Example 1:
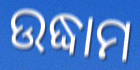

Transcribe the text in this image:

ଉଦ୍ଧାମ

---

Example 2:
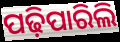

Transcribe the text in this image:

ପଢ଼ିପାରିଲି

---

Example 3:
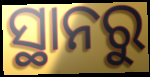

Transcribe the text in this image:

ସ୍ଥାନରୁ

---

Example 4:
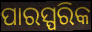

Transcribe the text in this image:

ପାରସ୍ପରିକ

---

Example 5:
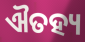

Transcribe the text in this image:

ଐତହ୍ୟ